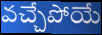
వచ్చేపోయే